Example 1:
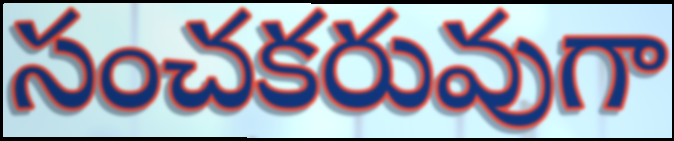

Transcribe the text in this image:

సంచకరువుగా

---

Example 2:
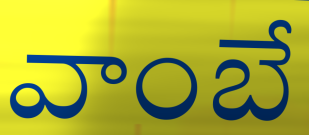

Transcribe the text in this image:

వాంబే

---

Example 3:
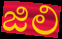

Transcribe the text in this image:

జిలి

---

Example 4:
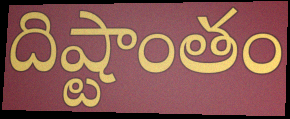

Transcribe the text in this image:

దిష్టాంతం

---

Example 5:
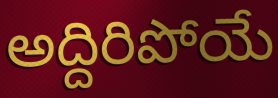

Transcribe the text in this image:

అద్దిరిపోయే